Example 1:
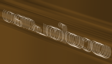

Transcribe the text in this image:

ഗണപതിയായ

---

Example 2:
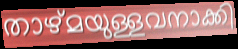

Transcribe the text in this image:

താഴ്മയുള്ളവനാക്കി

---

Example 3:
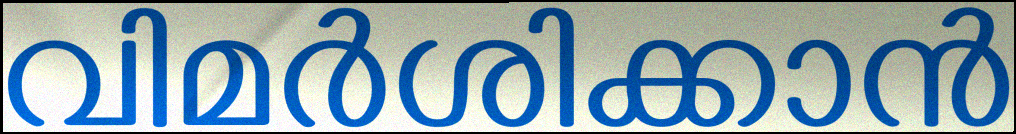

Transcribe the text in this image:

വിമർശിക്കാൻ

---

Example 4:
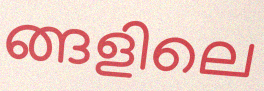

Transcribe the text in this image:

ങ്ങളിലെ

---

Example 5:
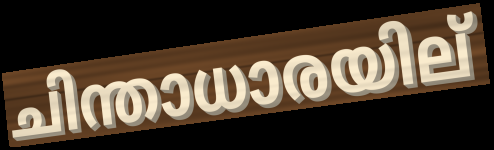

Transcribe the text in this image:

ചിന്താധാരയില്